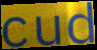
cud